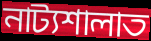
নাট্যশালাত